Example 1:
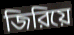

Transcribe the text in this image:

জিরিয়ে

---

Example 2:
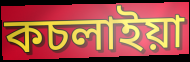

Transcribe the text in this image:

কচলাইয়া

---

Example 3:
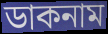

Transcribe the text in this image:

ডাকনাম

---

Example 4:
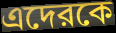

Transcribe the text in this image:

এদেরকে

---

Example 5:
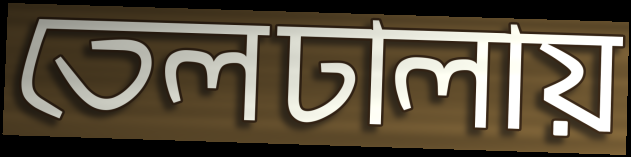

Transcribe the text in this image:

তেলঢালায়